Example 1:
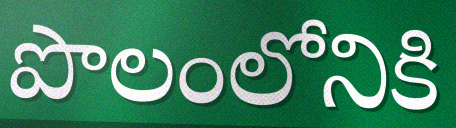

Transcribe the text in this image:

పొలంలోనికి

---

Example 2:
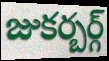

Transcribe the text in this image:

జుకర్బర్గ్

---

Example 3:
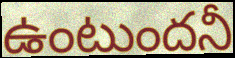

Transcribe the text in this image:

ఉంటుందనీ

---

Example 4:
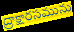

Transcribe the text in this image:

ద్రాక్షారసమును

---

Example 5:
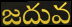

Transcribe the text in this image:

జదువ